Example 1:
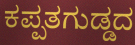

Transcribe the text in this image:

ಕಪ್ಪತಗುಡ್ಡದ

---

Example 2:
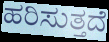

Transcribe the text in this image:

ಹರಿಸುತ್ತದೆ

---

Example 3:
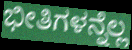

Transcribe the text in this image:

ಭೀತಿಗಳನ್ನೆಲ್ಲ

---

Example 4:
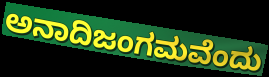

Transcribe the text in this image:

ಅನಾದಿಜಂಗಮವೆಂದು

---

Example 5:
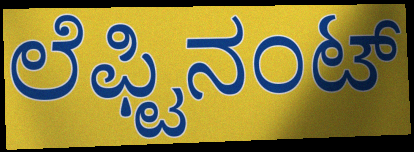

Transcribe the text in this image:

ಲೆಫ್ಟಿನಂಟ್